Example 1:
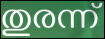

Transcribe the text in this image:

തുരന്ന്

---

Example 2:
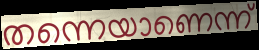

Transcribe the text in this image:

തന്നെയാണെന്ന്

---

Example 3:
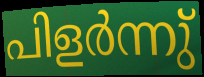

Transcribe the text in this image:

പിളർന്നു്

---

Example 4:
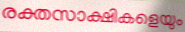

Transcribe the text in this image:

രക്തസാക്ഷികളെയും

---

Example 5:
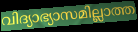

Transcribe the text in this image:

വിദ്യാഭ്യാസമില്ലാത്ത